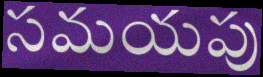
సమయపు